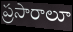
ప్రసారాలూ